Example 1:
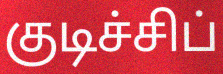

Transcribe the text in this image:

குடிச்சிப்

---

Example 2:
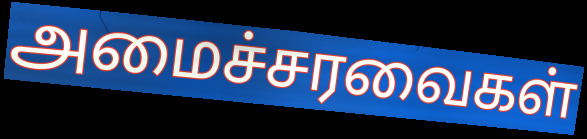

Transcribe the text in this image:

அமைச்சரவைகள்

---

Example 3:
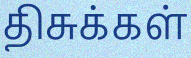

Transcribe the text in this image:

திசுக்கள்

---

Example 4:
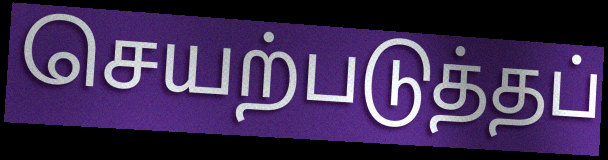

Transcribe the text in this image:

செயற்படுத்தப்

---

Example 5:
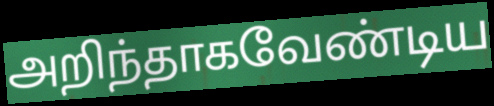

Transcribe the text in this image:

அறிந்தாகவேண்டிய